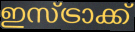
ഇസ്ട്രാക്ക്